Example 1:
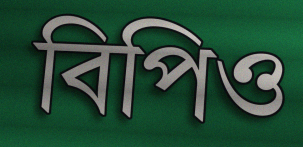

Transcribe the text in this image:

বিপিও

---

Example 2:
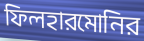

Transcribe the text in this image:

ফিলহারমোনির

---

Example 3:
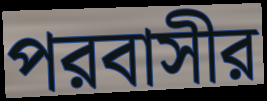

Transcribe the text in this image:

পরবাসীর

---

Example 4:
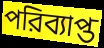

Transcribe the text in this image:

পরিব্যাপ্ত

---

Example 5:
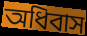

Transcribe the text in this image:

অধিবাস